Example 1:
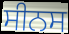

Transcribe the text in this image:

ਸੀਨਸ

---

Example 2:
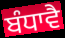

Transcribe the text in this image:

ਬੰਧਾਵੈ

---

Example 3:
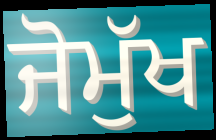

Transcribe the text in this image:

ਜੋਮੁੱਖ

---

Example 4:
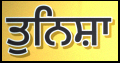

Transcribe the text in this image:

ਤੁਨਿਸ਼ਾ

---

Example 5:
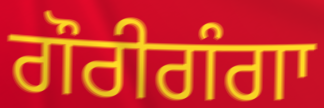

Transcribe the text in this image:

ਗੌਰੀਗੰਗਾ